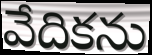
వేదికను